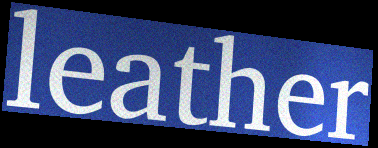
leather